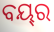
ବୟ୍‌ର